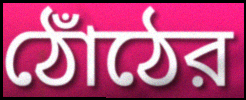
ঠোঁঠের